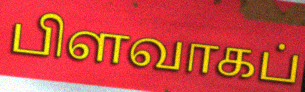
பிளவாகப்